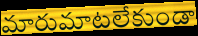
మారుమాటలేకుండా